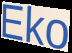
Eko